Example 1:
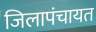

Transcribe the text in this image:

जिलापंचायत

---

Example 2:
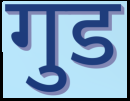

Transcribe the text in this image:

गुड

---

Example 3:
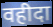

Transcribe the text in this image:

वहीदा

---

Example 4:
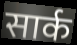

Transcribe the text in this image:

सार्क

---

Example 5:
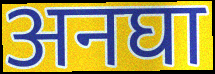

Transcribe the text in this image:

अनघा